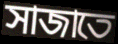
সাজাতে